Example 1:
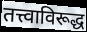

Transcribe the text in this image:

तत्त्वाविरूद्ध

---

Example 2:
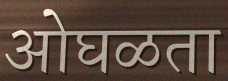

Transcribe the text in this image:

ओघळता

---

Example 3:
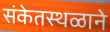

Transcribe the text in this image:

संकेतस्थळाने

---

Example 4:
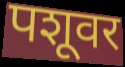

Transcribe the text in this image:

पशूवर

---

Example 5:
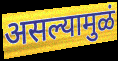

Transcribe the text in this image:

असल्यामुळं